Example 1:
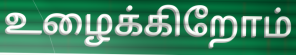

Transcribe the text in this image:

உழைக்கிறோம்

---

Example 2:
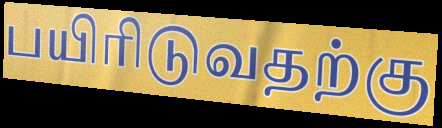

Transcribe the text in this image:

பயிரிடுவதற்கு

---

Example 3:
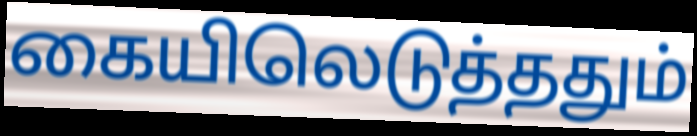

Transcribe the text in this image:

கையிலெடுத்ததும்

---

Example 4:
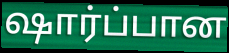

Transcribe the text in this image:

ஷார்ப்பான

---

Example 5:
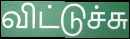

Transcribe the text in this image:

விட்டுச்சு